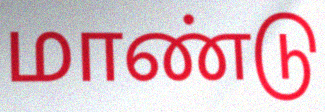
மாண்டு